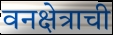
वनक्षेत्राची